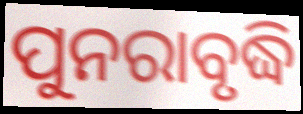
ପୁନରାବୃଦ୍ଧି